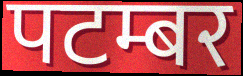
पटम्बर